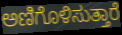
ಅಣಿಗೊಳಿಸುತ್ತಾರೆ